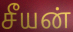
சீயன்